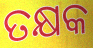
ତକ୍ଷକ